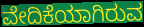
ವೇದಿಕೆಯಾಗಿರುವ